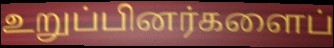
உறுப்பினர்களைப்